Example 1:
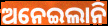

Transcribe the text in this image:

ଅନେଇଲାନି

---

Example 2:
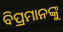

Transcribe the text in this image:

ବିପ୍ରମାନଙ୍କୁ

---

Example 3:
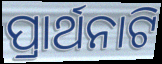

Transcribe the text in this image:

ପ୍ରାର୍ଥନାଟି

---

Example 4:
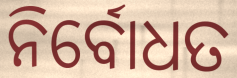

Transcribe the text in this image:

ନିର୍ବୋଧତ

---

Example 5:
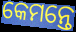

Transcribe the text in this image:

କେମନ୍ତେ